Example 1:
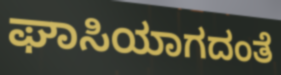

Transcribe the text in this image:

ಘಾಸಿಯಾಗದಂತೆ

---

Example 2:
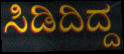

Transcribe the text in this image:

ಸಿಡಿದಿದ್ದ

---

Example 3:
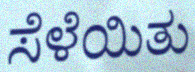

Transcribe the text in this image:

ಸೆಳೆಯಿತು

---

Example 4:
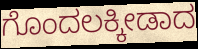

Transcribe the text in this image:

ಗೊಂದಲಕ್ಕೀಡಾದ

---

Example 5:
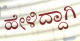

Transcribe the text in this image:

ಹೇಳಿದ್ದಾಗಿ